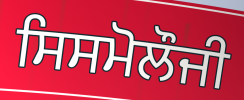
ਸਿਸਮੋਲੌਜੀ